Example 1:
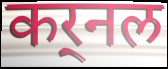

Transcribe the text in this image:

कर्नल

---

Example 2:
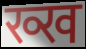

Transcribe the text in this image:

ख्ख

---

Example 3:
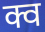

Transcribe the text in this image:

क्व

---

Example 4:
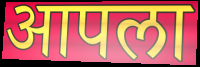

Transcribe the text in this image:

आपला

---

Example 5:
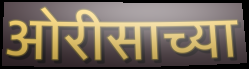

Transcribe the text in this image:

ओरीसाच्या